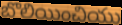
బొలియించియు